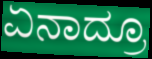
ಏನಾದ್ರೂ